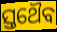
ସ୍ତଥୈବ